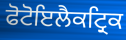
ਫੋਟੋਇਲੈਕਟ੍ਰਿਕ